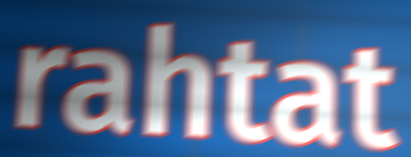
rahtat